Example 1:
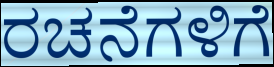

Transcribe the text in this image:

ರಚನೆಗಳಿಗೆ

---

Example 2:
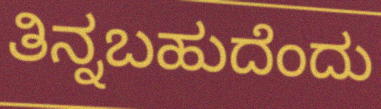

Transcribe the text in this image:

ತಿನ್ನಬಹುದೆಂದು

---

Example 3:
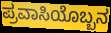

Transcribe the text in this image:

ಪ್ರವಾಸಿಯೊಬ್ಬನ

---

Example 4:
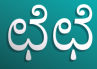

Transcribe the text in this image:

ಛೆಛೆ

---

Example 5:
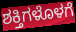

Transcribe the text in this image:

ಶಕ್ತಿಗಳೊಳಗೆ